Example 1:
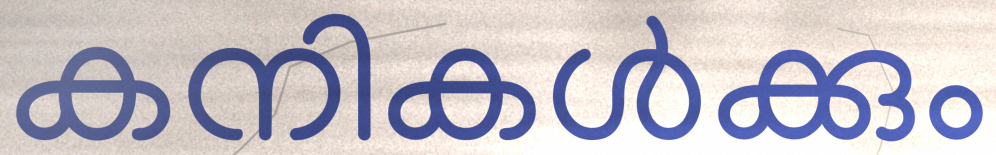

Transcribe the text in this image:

കനികൾക്കും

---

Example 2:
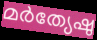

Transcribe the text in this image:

മർത്യേഷു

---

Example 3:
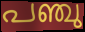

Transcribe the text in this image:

പഞ്ചു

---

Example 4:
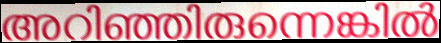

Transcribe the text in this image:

അറിഞ്ഞിരുന്നെങ്കിൽ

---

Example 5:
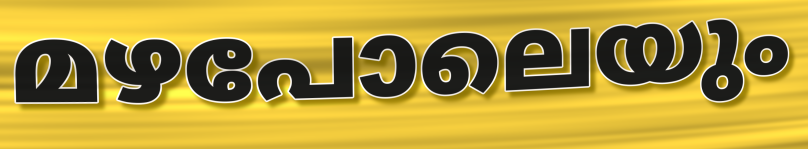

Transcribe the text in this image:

മഴപോലെയും